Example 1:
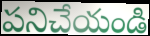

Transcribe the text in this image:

పనిచేయండి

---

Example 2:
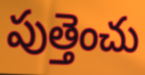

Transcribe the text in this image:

పుత్తెంచు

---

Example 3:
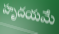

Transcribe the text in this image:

హృదయమే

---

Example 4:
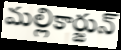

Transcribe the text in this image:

మల్లికార్జున్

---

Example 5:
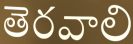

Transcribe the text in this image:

తెరవాలి